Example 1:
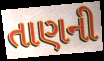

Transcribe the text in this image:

તાણની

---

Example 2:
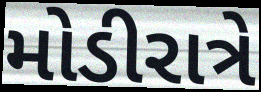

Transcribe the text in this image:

મોડીરાત્રે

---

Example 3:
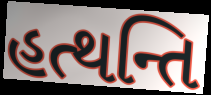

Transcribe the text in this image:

હત્થન્તિ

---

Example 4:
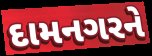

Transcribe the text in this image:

દામનગરને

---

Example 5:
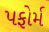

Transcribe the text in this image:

પફોર્મ